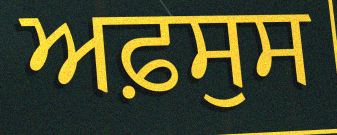
ਅਫ਼ਸੁਸ